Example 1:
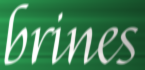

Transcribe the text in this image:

brines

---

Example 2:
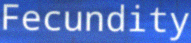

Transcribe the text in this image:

Fecundity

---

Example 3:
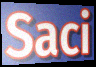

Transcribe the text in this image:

Saci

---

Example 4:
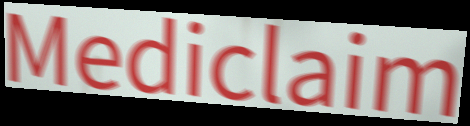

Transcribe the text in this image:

Mediclaim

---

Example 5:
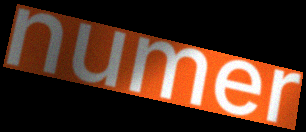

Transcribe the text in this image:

numer